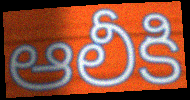
ఆలీకి